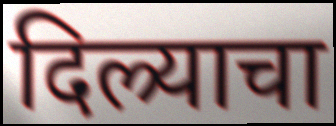
दिल्याचा